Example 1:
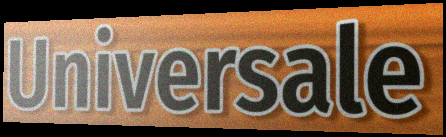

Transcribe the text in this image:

Universale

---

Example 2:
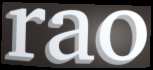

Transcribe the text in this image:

rao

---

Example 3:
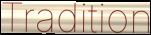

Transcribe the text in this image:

Tradition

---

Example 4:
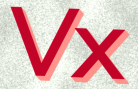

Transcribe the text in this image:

Vx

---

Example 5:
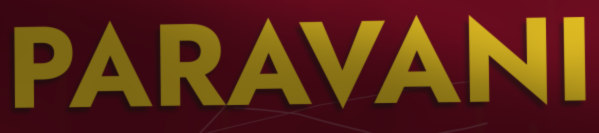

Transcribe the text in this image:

PARAVANI